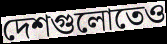
দেশগুলোতেও